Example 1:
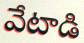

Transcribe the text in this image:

వేటాడి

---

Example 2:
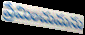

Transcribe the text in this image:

ప్రేమించుమను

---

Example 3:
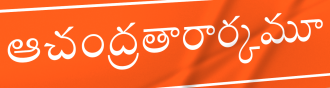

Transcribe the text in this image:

ఆచంద్రతారార్కమూ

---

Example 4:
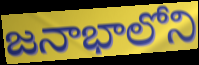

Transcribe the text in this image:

జనాభాలోని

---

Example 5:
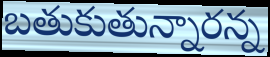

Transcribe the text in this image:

బతుకుతున్నారన్న